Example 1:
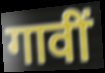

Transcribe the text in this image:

गावीं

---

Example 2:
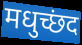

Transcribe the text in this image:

मधुच्छंद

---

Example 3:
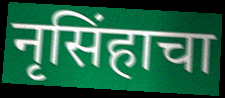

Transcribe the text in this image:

नृसिंहाचा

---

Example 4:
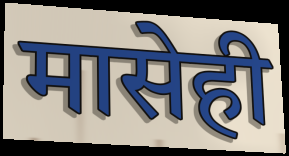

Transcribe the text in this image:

मासेही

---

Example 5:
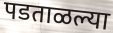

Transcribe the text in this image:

पडताळल्या